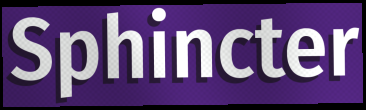
Sphincter